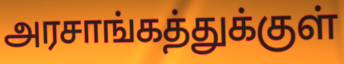
அரசாங்கத்துக்குள்